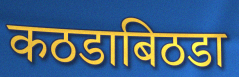
कठडाबिठडा